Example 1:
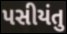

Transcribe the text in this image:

પસીયંતુ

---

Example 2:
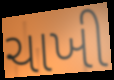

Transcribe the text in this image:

ચાખી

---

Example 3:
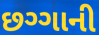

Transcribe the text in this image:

છગ્ગાની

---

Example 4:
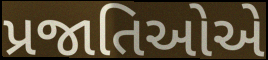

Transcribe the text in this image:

પ્રજાતિઓએ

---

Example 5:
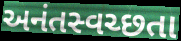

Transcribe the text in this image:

અનંતસ્વચ્છતા